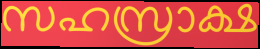
സഹസ്രാക്ഷ